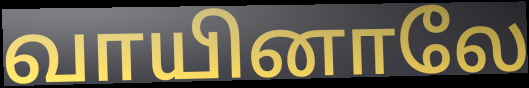
வாயினாலே